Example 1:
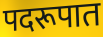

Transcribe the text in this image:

पदरूपात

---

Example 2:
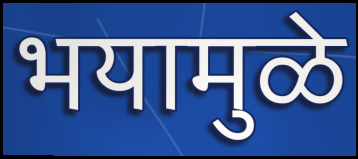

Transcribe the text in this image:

भयामुळे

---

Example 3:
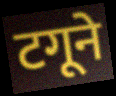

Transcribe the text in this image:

टगूने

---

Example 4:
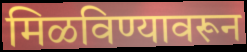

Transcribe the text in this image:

मिळविण्यावरून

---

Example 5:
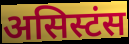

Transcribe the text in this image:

असिस्टंस